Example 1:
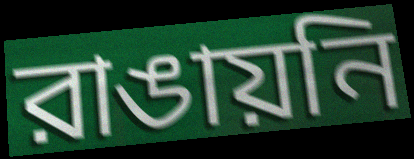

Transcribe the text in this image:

রাঙায়নি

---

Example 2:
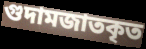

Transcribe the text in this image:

গুদামজাতকৃত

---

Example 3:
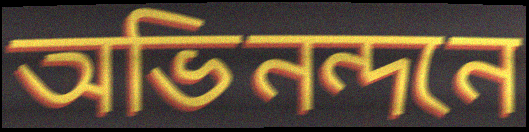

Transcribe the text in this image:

অভিনন্দনে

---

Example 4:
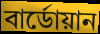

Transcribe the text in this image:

বার্ডোয়ান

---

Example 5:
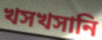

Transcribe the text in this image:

খসখসানি